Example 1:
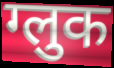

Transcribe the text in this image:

ग्लुक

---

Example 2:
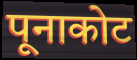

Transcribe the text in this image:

पूनाकोट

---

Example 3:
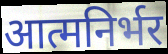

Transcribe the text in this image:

आत्मनिर्भर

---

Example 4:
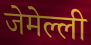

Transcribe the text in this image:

जेमेल्ली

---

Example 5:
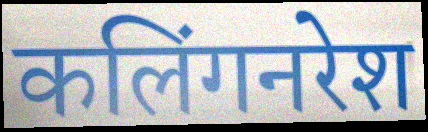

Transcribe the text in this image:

कलिंगनरेश